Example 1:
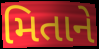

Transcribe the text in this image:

મિતાને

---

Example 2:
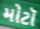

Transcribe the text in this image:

મોટૉ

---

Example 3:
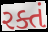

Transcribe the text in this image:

રક્તં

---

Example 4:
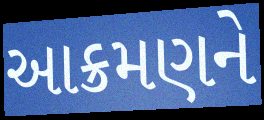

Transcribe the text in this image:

આક્રમણને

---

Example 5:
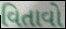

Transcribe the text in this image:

વિતાવો